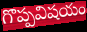
గొప్పవిషయం